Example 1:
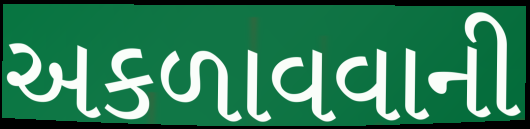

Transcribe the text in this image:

અકળાવવાની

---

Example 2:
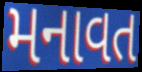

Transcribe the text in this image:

મનાવત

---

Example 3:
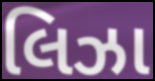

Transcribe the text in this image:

લિઝા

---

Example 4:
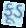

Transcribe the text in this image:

ફૂડ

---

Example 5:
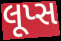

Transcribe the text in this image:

લૂપ્સ